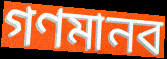
গণমানব